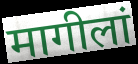
मागीलां